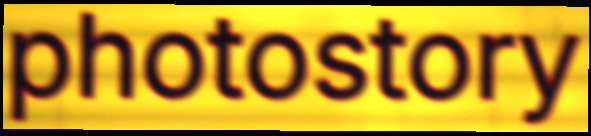
photostory